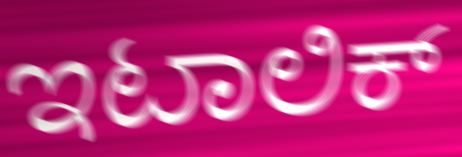
ಇಟಾಲಿಕ್